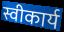
स्‍वीकार्य